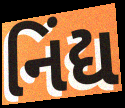
નિંદ્ય